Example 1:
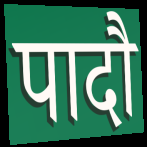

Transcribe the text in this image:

पादौ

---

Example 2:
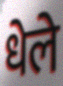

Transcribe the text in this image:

धेले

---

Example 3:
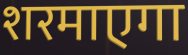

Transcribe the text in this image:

शरमाएगा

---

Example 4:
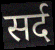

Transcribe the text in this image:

सर्द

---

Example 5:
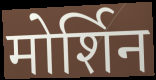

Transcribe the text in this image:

मोर्शिन